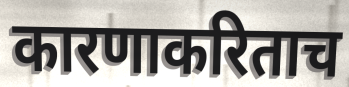
कारणाकरिताच